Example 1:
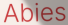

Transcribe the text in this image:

Abies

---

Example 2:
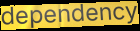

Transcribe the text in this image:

dependency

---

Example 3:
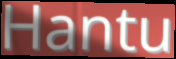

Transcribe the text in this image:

Hantu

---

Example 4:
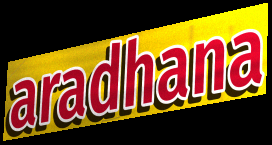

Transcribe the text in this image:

aradhana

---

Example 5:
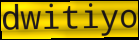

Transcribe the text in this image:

dwitiyo